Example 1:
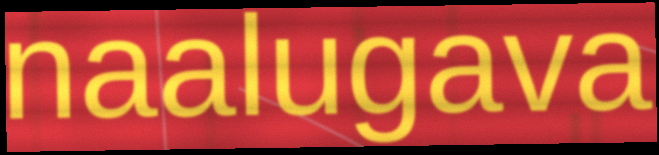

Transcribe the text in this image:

naalugava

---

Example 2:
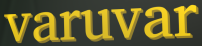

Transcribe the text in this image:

varuvar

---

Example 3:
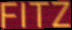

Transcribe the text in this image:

FITZ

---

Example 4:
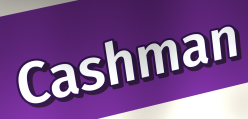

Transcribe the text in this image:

Cashman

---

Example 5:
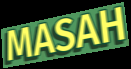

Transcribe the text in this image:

MASAH